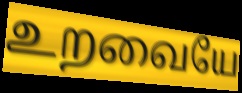
உறவையே